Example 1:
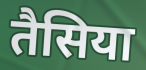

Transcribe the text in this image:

तैसिया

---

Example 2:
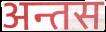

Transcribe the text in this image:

अन्तस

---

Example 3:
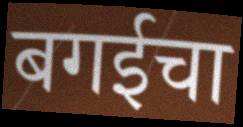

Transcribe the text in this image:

बगईचा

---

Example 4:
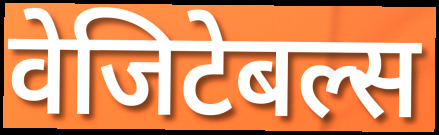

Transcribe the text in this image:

वेजिटेबल्स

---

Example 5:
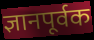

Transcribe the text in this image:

ज्ञानपूर्वक